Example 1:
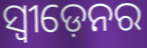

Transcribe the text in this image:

ସ୍ଵୀଡ଼େନର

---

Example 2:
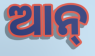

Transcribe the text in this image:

ଆନ୍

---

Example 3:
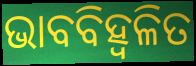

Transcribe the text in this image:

ଭାବବିହ୍ବଳିତ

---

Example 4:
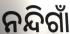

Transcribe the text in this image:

ନନ୍ଦିଗାଁ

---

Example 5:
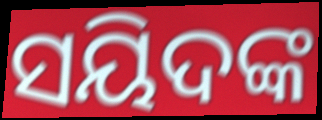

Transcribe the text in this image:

ସୟିଦଙ୍କ